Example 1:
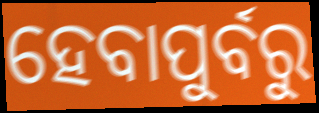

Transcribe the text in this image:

ହେବାପୁର୍ବରୁ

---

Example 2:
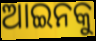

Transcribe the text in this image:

ଆଇନକୁ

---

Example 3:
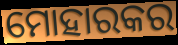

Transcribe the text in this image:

ମୋହାରକର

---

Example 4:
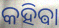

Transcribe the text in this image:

କହିଵା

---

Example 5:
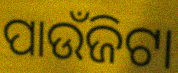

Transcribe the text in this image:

ପାଉଁଜିଟା